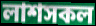
লাশসকল